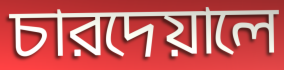
চারদেয়ালে